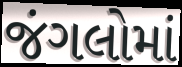
જંગલોમાં